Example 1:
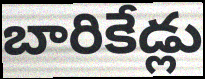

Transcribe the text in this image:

బారికేడ్లు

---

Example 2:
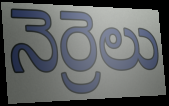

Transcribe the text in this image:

నెర్రెలు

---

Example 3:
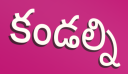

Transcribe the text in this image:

కండల్ని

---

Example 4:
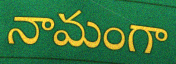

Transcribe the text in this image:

నామంగా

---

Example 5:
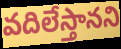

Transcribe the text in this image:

వదిలేస్తానని